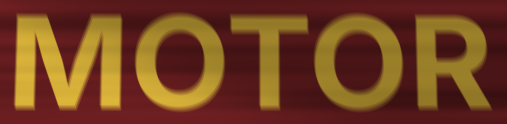
MOTOR